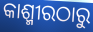
କାଶ୍ମୀରଠାରୁ